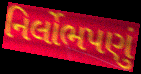
નિર્લોભપણું